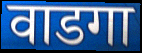
वाडगा